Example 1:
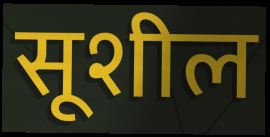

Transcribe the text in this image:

सूशील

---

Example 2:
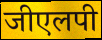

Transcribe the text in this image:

जीएलपी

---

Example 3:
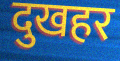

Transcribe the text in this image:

दुखहर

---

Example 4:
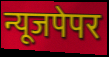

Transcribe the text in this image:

न्यूजपेपर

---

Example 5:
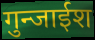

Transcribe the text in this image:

गुन्जाईश